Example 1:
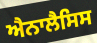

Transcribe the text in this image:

ਐਨਾਲੈਸਿਸ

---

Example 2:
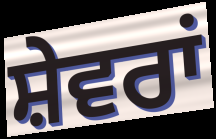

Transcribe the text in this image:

ਸ਼ੇਵਰਾਂ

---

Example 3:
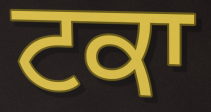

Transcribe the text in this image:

ਟਕਾ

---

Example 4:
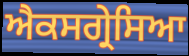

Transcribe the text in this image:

ਐਕਸਗ੍ਰੇਸਿਆ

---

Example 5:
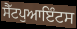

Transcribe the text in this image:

ਸੈੱਟਪੁਆਇੰਟਸ